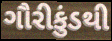
ગૌરીકુંડથી